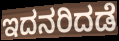
ಇದನರಿದಡೆ